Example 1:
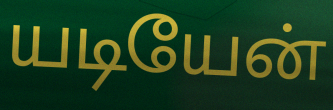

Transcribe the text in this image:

யடியேன்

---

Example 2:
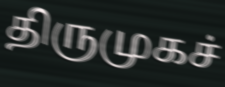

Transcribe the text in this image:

திருமுகச்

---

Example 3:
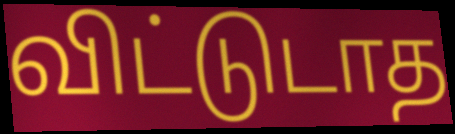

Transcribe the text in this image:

விட்டுடாத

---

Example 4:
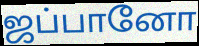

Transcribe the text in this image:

ஜப்பானோ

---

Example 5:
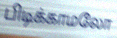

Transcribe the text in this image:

பிடிக்காமலோ